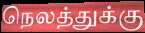
நெலத்துக்கு